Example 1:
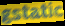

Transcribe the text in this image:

gstatic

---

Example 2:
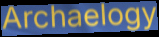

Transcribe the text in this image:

Archaelogy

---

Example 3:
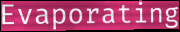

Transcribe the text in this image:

Evaporating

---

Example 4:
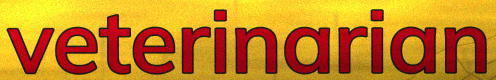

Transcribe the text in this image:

veterinarian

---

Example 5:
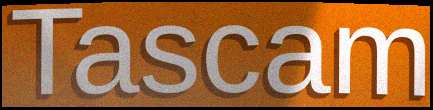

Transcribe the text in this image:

Tascam